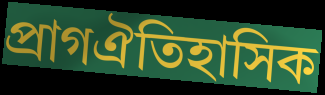
প্ৰাগঐতিহাসিক